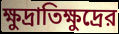
ক্ষুদ্রাতিক্ষুদ্রের